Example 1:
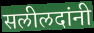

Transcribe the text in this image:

सलीलदांनी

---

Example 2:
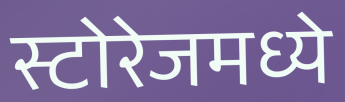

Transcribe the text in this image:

स्टोरेजमध्ये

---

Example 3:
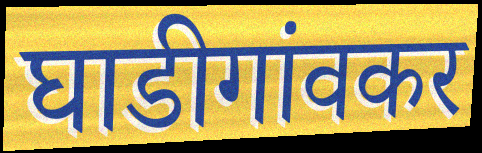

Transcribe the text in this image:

घाडीगांवकर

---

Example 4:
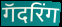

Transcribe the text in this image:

गॅदरिंग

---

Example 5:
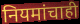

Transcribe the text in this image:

नियमांचाही